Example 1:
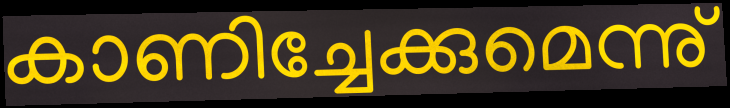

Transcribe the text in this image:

കാണിച്ചേക്കുമെന്നു്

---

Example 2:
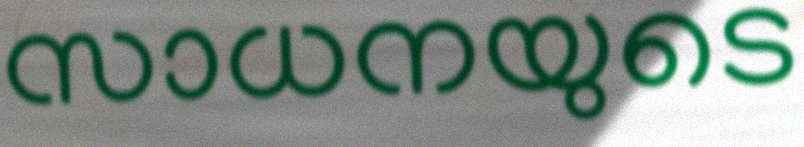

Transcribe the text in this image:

സാധനയുടെ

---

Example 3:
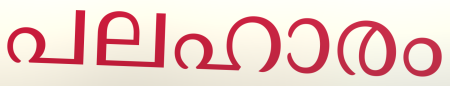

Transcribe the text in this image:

പലഹാരം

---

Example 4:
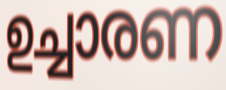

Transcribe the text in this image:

ഉച്ചാരണ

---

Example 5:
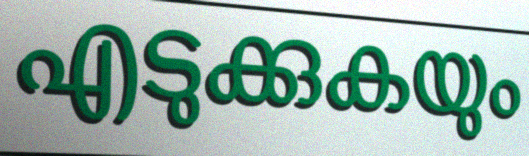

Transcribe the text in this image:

എടുക്കുകയും